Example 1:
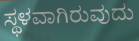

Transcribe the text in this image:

ಸ್ಥಳವಾಗಿರುವುದು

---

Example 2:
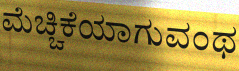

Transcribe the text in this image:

ಮೆಚ್ಚಿಕೆಯಾಗುವಂಥ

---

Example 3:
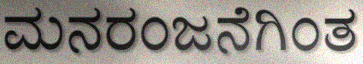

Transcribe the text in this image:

ಮನರಂಜನೆಗಿಂತ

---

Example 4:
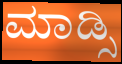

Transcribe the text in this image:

ಮಾಡ್ಸಿ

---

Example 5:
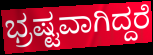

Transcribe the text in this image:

ಭ್ರಷ್ಟವಾಗಿದ್ದರೆ